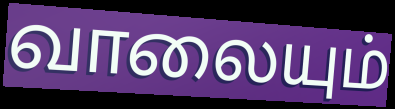
வாலையும்